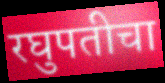
रघुपतीचा